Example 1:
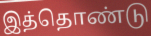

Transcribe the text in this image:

இத்தொண்டு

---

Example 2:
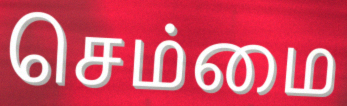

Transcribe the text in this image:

செம்மை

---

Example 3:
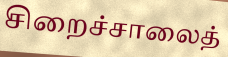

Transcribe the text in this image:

சிறைச்சாலைத்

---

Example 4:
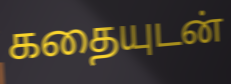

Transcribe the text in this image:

கதையுடன்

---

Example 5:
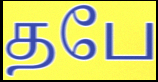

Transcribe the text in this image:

தபே